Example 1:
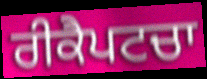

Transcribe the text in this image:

ਰੀਕੈਪਟਚਾ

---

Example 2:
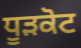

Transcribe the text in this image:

ਧੂੜਕੋਟ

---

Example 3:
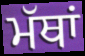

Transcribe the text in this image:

ਮੱਥਾਂ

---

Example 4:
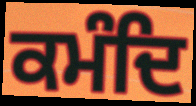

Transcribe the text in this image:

ਕਮੰਦਿ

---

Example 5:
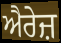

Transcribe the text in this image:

ਐਰੇਜ਼